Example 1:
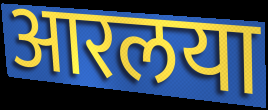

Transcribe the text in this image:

आरलया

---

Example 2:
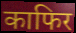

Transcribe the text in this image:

काफिर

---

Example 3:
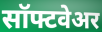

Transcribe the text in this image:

सॉफ्टवेअर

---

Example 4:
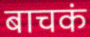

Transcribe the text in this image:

बाचकं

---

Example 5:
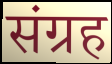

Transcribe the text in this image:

संग्रह